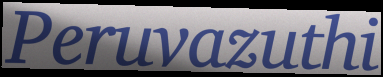
Peruvazuthi